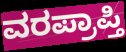
ವರಪ್ರಾಪ್ತಿ